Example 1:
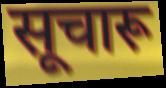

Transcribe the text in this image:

सूचारू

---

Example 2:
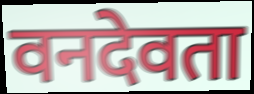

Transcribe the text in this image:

वनदेवता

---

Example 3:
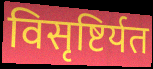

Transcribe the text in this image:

विसृष्टिर्यत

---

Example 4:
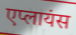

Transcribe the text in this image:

एप्लायंस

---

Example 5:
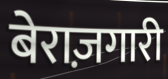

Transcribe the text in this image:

बेराज़गारी